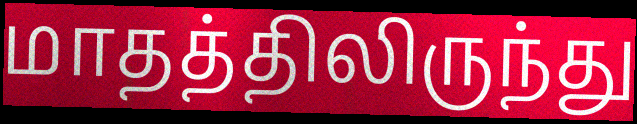
மாதத்திலிருந்து